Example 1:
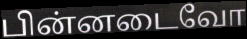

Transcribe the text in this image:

பின்னடைவோ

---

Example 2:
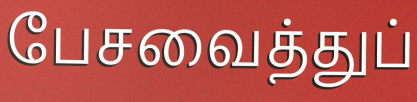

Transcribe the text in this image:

பேசவைத்துப்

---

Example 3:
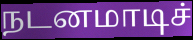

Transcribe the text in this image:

நடனமாடிச்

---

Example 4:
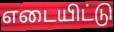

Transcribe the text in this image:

எடையிட்டு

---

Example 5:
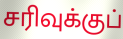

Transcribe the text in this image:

சரிவுக்குப்